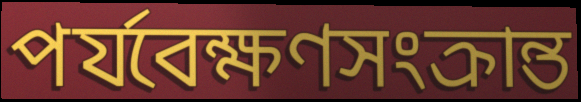
পর্যবেক্ষণসংক্রান্ত